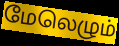
மேலெழும்